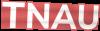
TNAU